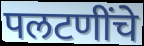
पलटणींचे